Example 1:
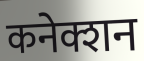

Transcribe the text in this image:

कनेक्‍शन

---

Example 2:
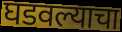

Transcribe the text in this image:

घडवल्याचा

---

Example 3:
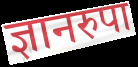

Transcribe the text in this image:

ज्ञानरुपा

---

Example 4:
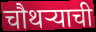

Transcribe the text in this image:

चौथऱ्याची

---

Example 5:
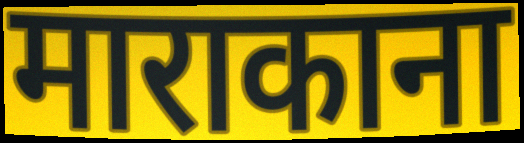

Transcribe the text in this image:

माराकाना